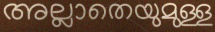
അല്ലാതെയുമുള്ള